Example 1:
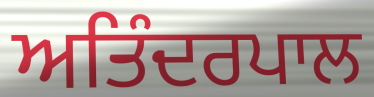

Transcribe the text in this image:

ਅਤਿੰਦਰਪਾਲ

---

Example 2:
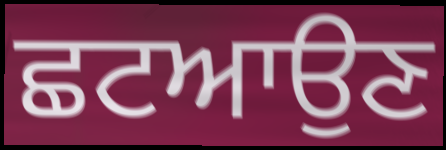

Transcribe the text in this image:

ਛਟਆਉਣ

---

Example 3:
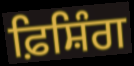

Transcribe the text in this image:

ਫ਼ਿਸ਼ਿੰਗ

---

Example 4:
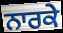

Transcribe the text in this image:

ਨਾਰਕੇ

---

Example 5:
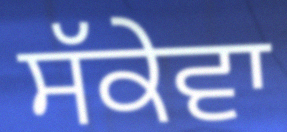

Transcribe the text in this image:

ਸੱਕੇਵਾ